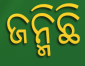
ଜନ୍ମିଛି